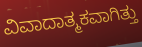
ವಿವಾದಾತ್ಮಕವಾಗಿತ್ತು